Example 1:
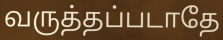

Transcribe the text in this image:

வருத்தப்படாதே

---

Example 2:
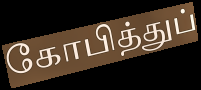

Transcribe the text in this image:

கோபித்துப்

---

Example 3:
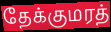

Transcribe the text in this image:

தேக்குமரத்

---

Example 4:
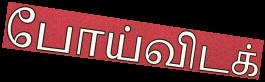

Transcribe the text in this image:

போய்விடக்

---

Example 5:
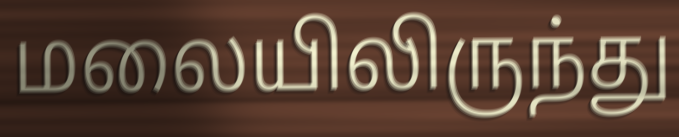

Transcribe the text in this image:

மலையிலிருந்து